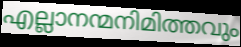
എല്ലാനന്മനിമിത്തവും